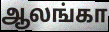
ஆலங்கா